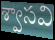
శ్వాసవి